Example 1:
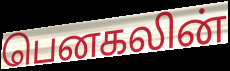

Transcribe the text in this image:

பெனகலின்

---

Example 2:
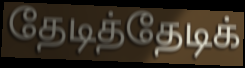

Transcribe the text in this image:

தேடித்தேடிக்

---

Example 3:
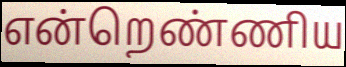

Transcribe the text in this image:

என்றெண்ணிய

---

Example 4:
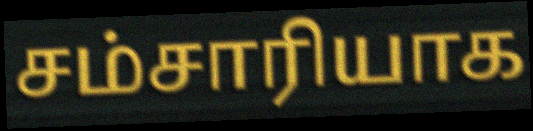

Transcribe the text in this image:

சம்சாரியாக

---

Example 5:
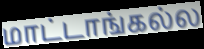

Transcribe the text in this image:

மாட்டாங்கல்ல